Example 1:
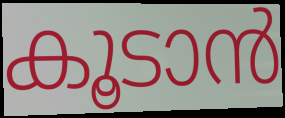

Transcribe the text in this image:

കൂടാൻ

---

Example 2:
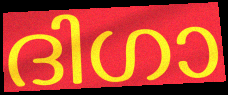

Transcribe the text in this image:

ദിഗാ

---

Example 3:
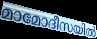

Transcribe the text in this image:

മാമോദീസയിൽ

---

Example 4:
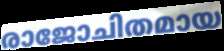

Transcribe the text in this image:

രാജോചിതമായ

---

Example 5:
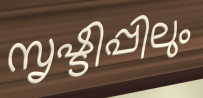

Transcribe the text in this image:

സൃഷ്ടിപ്പിലും